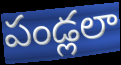
పండ్లలా